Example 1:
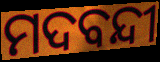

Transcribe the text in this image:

ମଦବନ୍ଦୀ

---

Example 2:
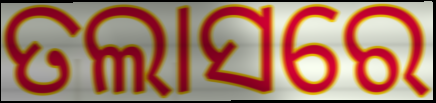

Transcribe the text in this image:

ତଲାସରେ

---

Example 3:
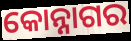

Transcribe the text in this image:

କୋନ୍ନାଗର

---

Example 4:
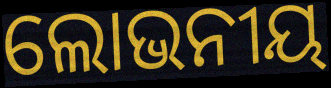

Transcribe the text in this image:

ଲୋଭନୀୟ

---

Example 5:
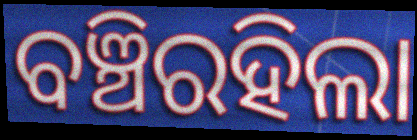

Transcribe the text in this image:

ବଞ୍ଚିରହିଲା